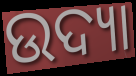
ଉଦ୍ୟା